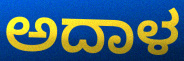
ಅದಾಳ